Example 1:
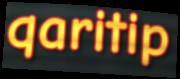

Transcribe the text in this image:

qaritip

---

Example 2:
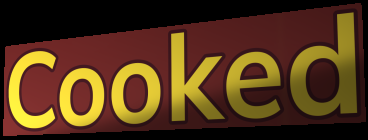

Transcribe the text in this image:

Cooked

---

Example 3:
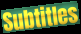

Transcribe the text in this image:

Subtitles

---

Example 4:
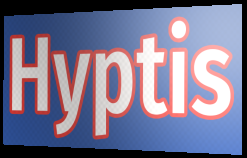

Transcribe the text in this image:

Hyptis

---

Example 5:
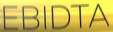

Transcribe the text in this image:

EBIDTA